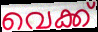
വെക്ക്